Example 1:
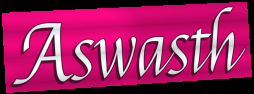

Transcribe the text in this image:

Aswasth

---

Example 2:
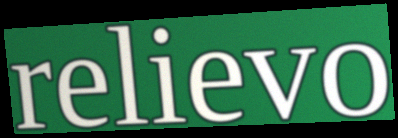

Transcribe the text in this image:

relievo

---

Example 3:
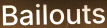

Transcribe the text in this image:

Bailouts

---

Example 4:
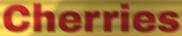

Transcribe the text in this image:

Cherries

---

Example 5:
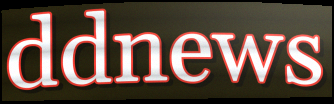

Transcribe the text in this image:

ddnews